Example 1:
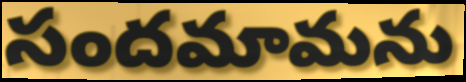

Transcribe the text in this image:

సందమామను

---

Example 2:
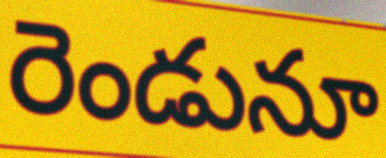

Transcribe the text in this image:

రెండునూ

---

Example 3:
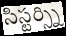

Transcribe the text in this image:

సిస్టర్స్ని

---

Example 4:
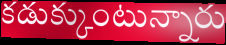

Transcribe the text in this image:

కడుక్కుంటున్నారు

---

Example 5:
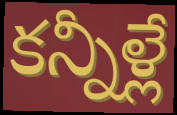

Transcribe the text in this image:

కన్నీళ్లే